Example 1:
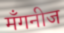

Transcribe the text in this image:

मँगनीज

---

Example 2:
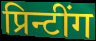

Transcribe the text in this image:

प्रिन्टींग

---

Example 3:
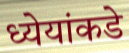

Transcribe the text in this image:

ध्येयांकडे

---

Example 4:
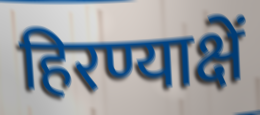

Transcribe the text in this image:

हिरण्याक्षें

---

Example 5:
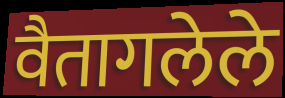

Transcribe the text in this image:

वैतागलेले